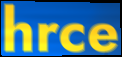
hrce